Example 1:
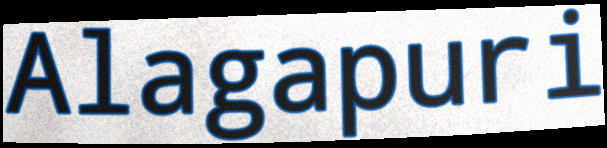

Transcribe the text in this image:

Alagapuri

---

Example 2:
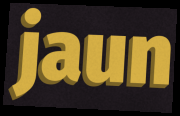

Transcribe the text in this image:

jaun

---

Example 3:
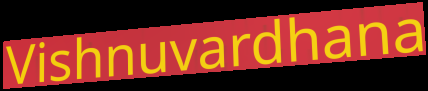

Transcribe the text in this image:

Vishnuvardhana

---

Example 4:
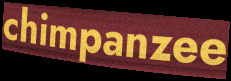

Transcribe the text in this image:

chimpanzee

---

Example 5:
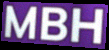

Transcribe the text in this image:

MBH